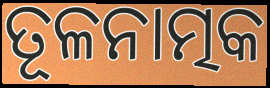
ତୂଳନାତ୍ମକ